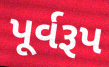
પૂર્વરૂપ